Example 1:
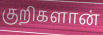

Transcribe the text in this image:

குறிகளான்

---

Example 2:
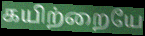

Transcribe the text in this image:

கயிற்றையே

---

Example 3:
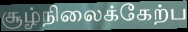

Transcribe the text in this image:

சூழ்நிலைக்கேற்ப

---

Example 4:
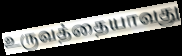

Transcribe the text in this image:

உருவத்தையாவது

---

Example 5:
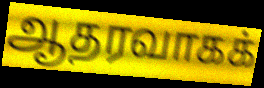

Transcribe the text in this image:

ஆதரவாகக்